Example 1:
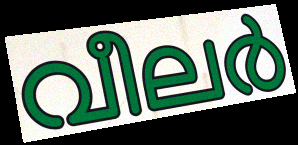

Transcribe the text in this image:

വീലർ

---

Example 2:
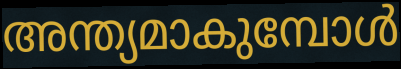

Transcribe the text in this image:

അന്ത്യമാകുമ്പോൾ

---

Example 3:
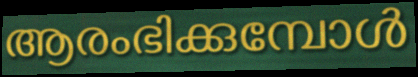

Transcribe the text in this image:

ആരംഭിക്കുമ്പോൾ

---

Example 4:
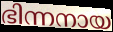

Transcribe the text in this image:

ഭിന്നനായ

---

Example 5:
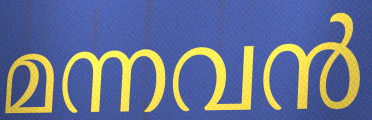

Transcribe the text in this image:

മന്നവൻ